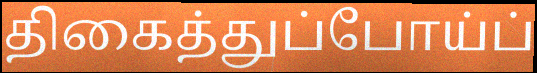
திகைத்துப்போய்ப்